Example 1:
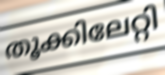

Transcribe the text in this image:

തൂക്കിലേറ്റി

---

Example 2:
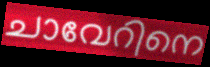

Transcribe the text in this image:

ചാവേറിനെ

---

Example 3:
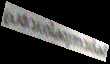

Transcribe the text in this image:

പ്രവേശിക്കുന്നവർക്ക്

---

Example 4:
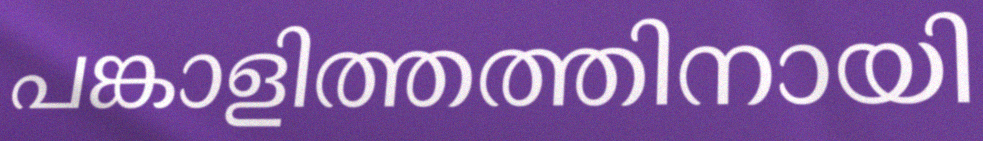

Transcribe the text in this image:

പങ്കാളിത്തത്തിനായി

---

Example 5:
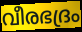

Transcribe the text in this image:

വീരഭദ്രം